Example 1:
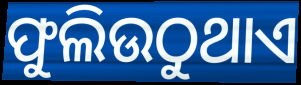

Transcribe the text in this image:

ଫୁଲିଉଠୁଥାଏ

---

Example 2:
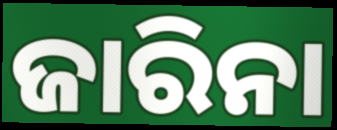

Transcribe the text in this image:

ଜାରିନା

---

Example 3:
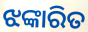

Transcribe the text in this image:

ଝଙ୍କାରିତ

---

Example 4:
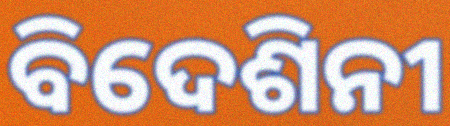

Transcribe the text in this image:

ବିଦେଶିନୀ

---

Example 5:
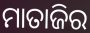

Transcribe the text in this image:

ମାତାଜିର